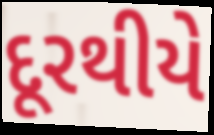
દૂરથીયે